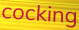
cocking